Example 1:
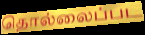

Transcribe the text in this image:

தொல்லைப்பட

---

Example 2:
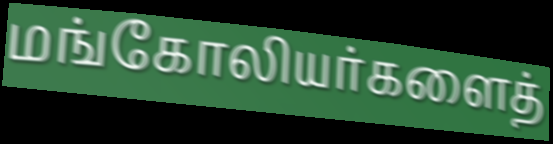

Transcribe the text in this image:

மங்கோலியர்களைத்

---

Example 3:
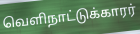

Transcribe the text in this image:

வெளிநாட்டுக்காரர்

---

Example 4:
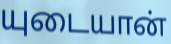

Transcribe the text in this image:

யுடையான்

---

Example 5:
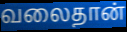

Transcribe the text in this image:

வலைதான்